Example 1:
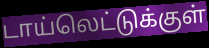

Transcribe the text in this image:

டாய்லெட்டுக்குள்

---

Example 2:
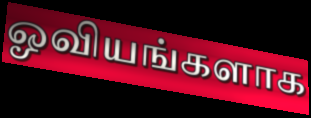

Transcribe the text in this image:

ஓவியங்களாக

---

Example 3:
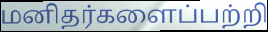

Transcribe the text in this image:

மனிதர்களைப்பற்றி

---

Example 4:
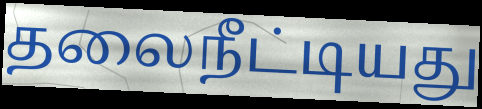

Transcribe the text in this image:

தலைநீட்டியது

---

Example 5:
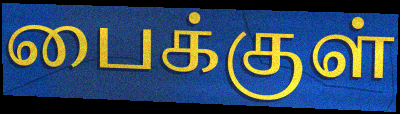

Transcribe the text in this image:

பைக்குள்